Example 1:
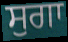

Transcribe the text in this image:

ਸੁਗਾ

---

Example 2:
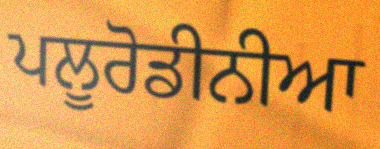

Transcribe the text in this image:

ਪਲੂਰੋਡੀਨੀਆ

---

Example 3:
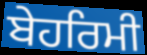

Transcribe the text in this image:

ਬੇਹਰਿਮੀ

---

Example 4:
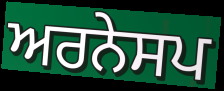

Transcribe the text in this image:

ਅਰਨੇਸਪ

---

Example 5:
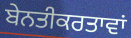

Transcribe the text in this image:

ਬੇਨਤੀਕਰਤਾਵਾਂ